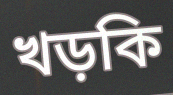
খড়কি